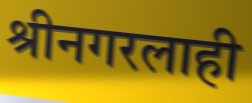
श्रीनगरलाही